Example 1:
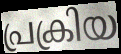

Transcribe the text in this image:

പ്രക്രിയ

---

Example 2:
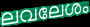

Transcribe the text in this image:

ലവലേശം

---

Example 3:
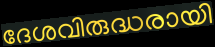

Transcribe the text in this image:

ദേശവിരുദ്ധരായി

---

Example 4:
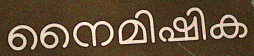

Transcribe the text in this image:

നൈമിഷിക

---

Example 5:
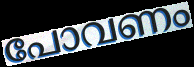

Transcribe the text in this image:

പോവണം